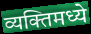
व्यक्तिमध्ये